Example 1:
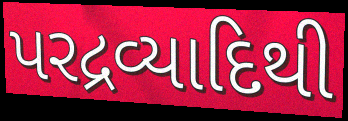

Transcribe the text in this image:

પરદ્રવ્યાદિથી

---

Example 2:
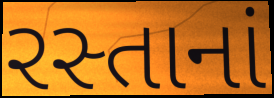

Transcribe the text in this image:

રસ્તાનાં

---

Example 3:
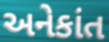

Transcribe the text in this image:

અનેકાંત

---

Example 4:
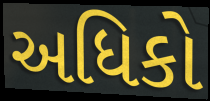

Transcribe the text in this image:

અધિકો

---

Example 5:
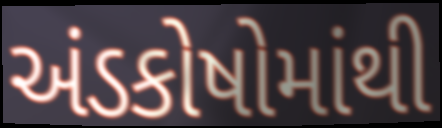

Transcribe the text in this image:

અંડકોષોમાંથી